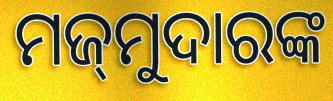
ମଜ୍‍ମୁଦାରଙ୍କ